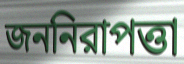
জননিরাপত্তা